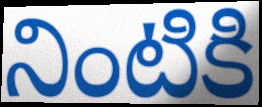
నింటికి